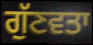
ਗੁੱਣਵਤਾ